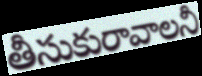
తీసుకురావాలనీ